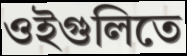
ওইগুলিতে